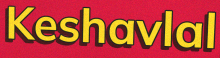
Keshavlal